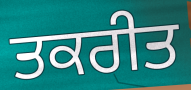
ਤਕਰੀਤ